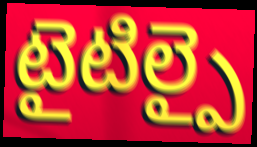
టైటిల్పై